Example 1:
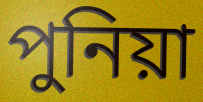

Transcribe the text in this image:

পুনিয়া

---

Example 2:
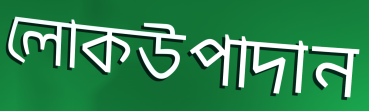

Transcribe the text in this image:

লোকউপাদান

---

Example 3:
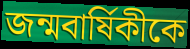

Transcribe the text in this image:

জন্মবার্ষিকীকে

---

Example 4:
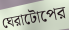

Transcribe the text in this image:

ঘেরাটোপের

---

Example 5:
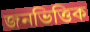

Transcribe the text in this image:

জনভিত্তিক